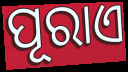
ପୂରାଏ